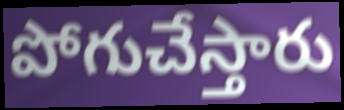
పోగుచేస్తారు